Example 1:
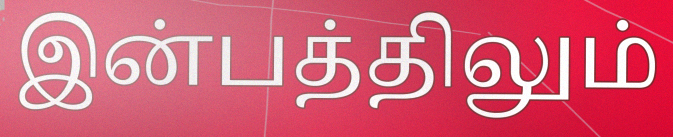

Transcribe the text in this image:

இன்பத்திலும்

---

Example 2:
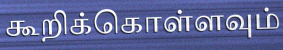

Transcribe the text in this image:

கூறிக்கொள்ளவும்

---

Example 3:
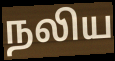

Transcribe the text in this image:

நலிய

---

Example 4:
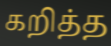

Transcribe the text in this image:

கறித்த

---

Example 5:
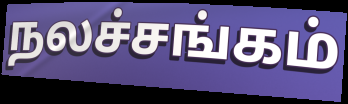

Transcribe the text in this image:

நலச்சங்கம்